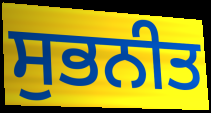
ਸੁਭਨੀਤ